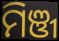
ମିଞ୍ଜ